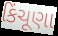
કિંચૂણા